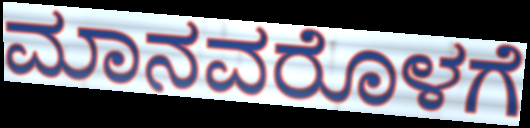
ಮಾನವರೊಳಗೆ